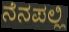
ನೆನಪಲ್ಲಿ